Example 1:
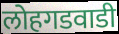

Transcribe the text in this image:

लोहगडवाडी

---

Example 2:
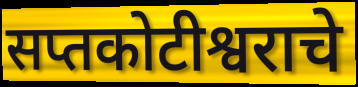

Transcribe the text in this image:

सप्तकोटीश्वराचे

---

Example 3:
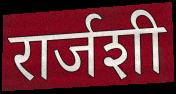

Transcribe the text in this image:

रार्जशी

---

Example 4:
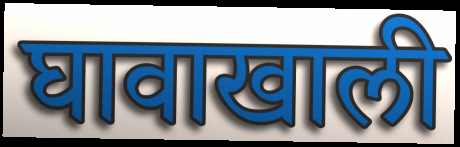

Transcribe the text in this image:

घावाखाली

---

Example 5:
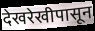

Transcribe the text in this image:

देखरेखीपासून